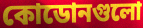
কোডোনগুলো